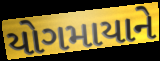
યોગમાયાને